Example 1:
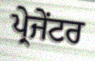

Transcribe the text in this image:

ਪ੍ਰੇਜੇਂਟਰ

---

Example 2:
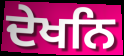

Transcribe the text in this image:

ਦੇਖਨਿ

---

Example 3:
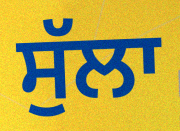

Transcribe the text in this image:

ਸੁੱਲਾ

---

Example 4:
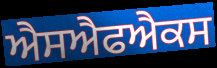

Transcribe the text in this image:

ਐਸਐਫਐਕਸ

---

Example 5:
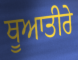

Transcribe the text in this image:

ਥੂਆਤੀਰੇ